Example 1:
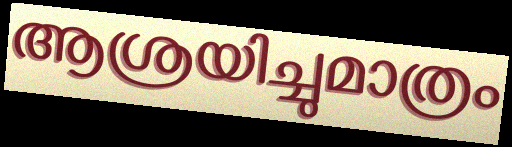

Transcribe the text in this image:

ആശ്രയിച്ചുമാത്രം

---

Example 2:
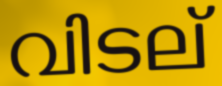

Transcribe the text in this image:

വിടല്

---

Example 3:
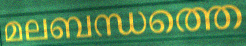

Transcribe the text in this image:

മലബന്ധത്തെ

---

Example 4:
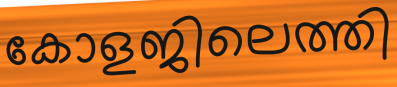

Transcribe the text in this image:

കോളജിലെത്തി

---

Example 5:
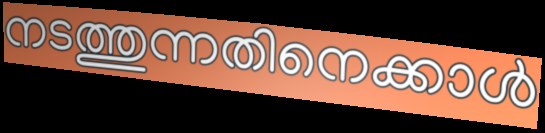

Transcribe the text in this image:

നടത്തുന്നതിനെക്കാൾ